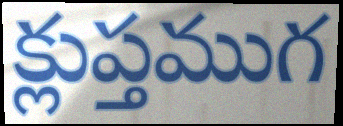
క్లుప్తముగ